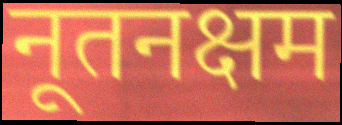
नूतनक्षम